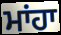
ਮਾਂਹਾ